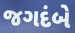
જગદંબે